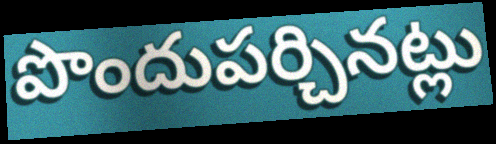
పొందుపర్చినట్లు